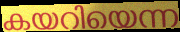
കയറിയെന്ന